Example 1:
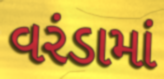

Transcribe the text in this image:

વરંડામાં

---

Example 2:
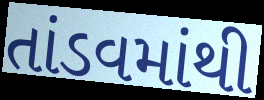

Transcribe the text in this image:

તાંડવમાંથી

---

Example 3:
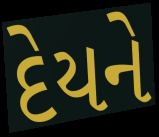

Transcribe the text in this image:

દેયને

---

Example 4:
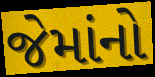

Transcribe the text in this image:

જેમાંનો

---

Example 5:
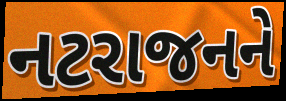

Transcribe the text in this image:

નટરાજનને